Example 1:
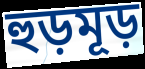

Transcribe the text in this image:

হুড়মূড়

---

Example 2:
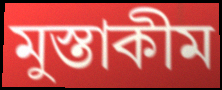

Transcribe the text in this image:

মুস্তাকীম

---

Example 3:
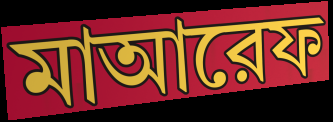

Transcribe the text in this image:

মাআরেফ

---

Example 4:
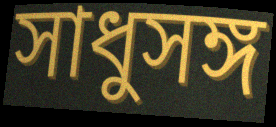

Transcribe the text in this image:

সাধুসঙ্গ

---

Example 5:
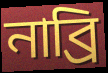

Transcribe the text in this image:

নাব্রি